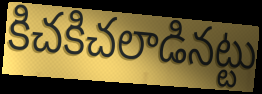
కిచకిచలాడినట్టు